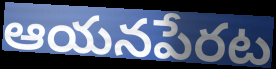
ఆయనపేరట